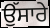
ਉੱਸਾਰੇ